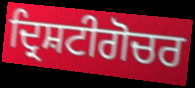
ਦ੍ਰਿਸ਼ਟੀਗੋਚਰ